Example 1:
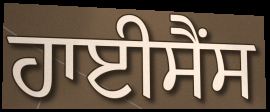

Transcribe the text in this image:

ਹਾਈਸੈਂਸ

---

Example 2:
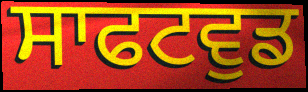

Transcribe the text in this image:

ਸਾਫਟਵੁਡ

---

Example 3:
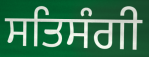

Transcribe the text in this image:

ਸਤਿਸੰਗੀ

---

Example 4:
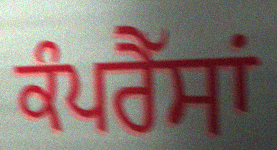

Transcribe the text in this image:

ਕੰਪਰੈੱਸਾਂ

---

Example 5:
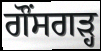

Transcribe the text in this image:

ਗੌਂਸਗੜ੍ਹ